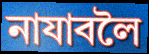
নাযাবলৈ